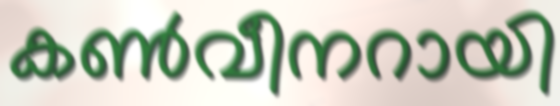
കൺവീനറായി